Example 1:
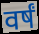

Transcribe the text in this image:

वर्षं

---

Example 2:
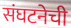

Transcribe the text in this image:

संघटनेची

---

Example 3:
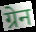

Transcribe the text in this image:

ग्रेन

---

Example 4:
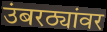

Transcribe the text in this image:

उंबरठ्यांवर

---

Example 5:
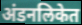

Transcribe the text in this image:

अंडनलिकेत